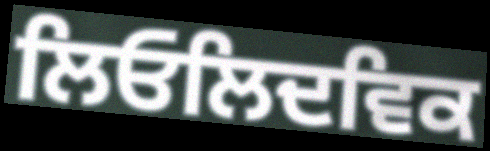
ਲਿਓਲਿਦਵਿਕ